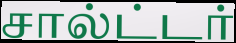
சால்ட்டர்